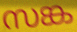
സങ്ക